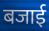
बजाई